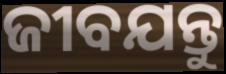
ଜୀବଯନ୍ତୁ